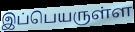
இப்பெயருள்ள